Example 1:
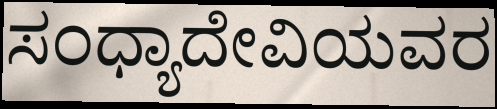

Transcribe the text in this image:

ಸಂಧ್ಯಾದೇವಿಯವರ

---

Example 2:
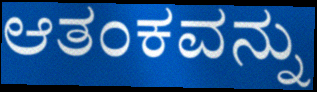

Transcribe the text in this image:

ಆತಂಕವನ್ನು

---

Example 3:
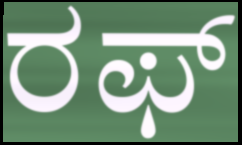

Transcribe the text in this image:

ರಫ್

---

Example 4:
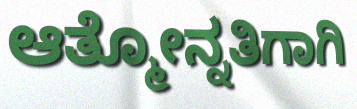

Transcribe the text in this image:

ಆತ್ಮೋನ್ನತಿಗಾಗಿ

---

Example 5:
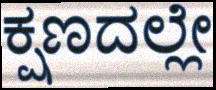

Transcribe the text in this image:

ಕ್ಷಣದಲ್ಲೇ